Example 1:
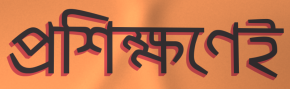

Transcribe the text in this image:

প্রশিক্ষণেই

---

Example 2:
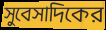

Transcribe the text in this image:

সুবেসাদিকের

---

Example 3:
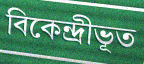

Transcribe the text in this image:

বিকেন্দ্রীভূত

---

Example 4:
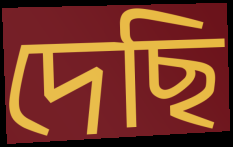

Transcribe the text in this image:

দেছি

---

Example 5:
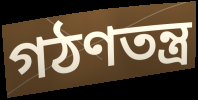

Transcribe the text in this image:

গঠণতন্ত্র